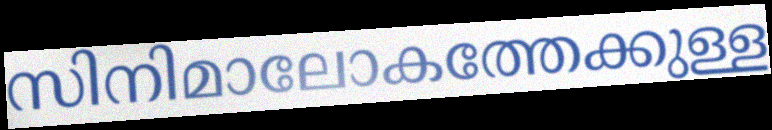
സിനിമാലോകത്തേക്കുള്ള